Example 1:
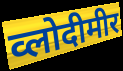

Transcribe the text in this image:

व्लोदीमीर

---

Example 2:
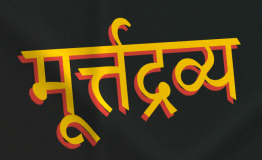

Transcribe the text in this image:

मूर्त्तद्रव्य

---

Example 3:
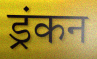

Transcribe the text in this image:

ड्रंकन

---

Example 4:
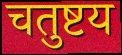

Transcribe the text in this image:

चतुष्टय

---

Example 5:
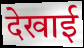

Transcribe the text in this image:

देखाई